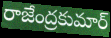
రాజేంద్రకుమార్